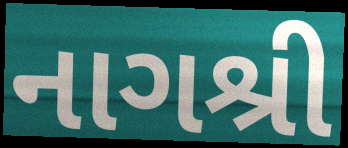
નાગશ્રી